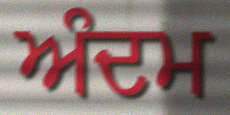
ਅੰਦਮ